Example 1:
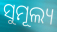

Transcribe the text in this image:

ସୁମୂଲ୍ୟ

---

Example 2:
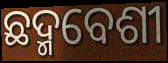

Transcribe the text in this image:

ଛଦ୍ମବେଶୀ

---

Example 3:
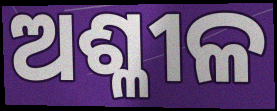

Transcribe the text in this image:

ଅଶ୍ଳୀଳ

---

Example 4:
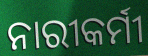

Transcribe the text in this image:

ନାରୀକର୍ମୀ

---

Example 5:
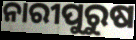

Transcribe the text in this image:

ନାରୀପୁରୁଷ